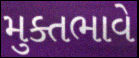
મુક્તભાવે